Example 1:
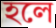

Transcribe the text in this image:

হলে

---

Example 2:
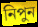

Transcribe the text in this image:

নিপুন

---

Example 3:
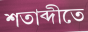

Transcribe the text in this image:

শতাব্দীতে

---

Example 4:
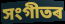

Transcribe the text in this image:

সংগীতৰ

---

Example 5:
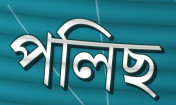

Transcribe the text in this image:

পলিছ